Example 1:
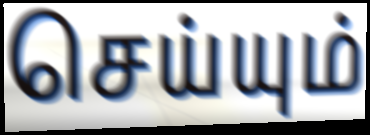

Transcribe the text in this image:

செய்யும்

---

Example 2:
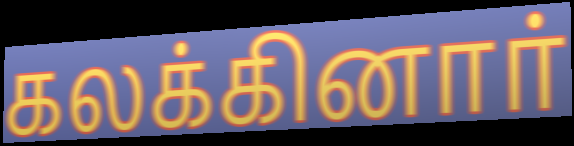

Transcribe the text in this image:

கலக்கினார்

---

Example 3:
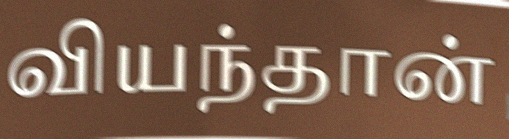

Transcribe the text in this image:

வியந்தான்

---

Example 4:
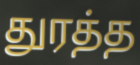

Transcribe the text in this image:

துரத்த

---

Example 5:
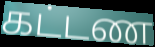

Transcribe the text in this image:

கட்டண